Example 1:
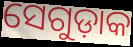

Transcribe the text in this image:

ସେଗୁଡ଼ାକ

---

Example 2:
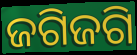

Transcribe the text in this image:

ଜଗିଜଗି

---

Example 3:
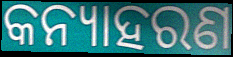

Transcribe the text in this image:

କନ୍ୟାହରଣ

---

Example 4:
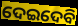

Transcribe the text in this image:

ଦେଇଦେବି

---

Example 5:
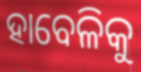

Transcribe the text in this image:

ହାବେଳିକୁ